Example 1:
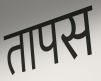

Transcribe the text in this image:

तापस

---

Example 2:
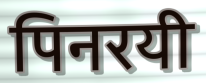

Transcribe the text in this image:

पिनरयी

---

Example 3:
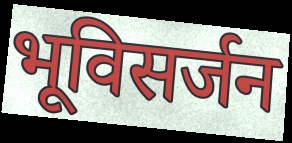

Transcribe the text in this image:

भूविसर्जन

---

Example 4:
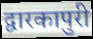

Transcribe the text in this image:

द्वारकापुरी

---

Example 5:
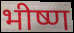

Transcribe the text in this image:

भीष्ण